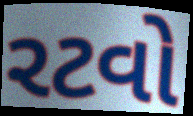
રટવો